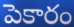
పెకారం